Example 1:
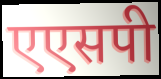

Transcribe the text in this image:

एएसपी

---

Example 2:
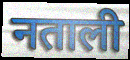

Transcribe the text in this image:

नताली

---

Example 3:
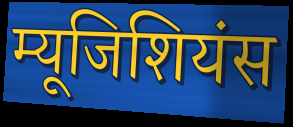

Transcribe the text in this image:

म्यूजिशियंस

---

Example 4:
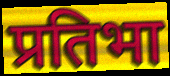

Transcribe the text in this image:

प्रतिभा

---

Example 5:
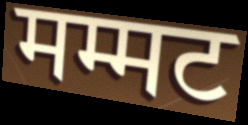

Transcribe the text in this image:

मम्मट